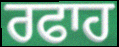
ਰਫਾਹ